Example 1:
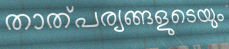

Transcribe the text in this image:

താത്പര്യങ്ങളുടെയും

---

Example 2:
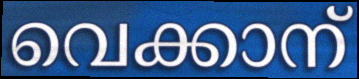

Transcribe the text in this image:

വെക്കാന്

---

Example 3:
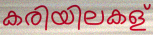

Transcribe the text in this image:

കരിയിലകള്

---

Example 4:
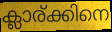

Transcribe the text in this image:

ക്ലാര്ക്കിനെ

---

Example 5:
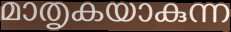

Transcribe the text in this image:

മാതൃകയാകുന്ന